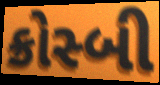
ક્રોસ્બી